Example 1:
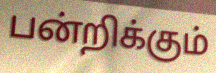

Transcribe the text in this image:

பன்றிக்கும்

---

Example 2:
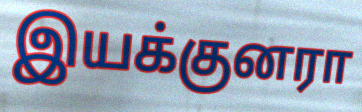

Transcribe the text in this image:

இயக்குனரா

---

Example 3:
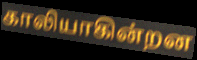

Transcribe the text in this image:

காலியாகின்றன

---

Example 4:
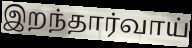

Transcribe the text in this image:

இறந்தார்வாய்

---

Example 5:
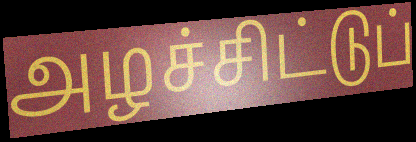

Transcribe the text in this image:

அழச்சிட்டுப்